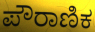
ಪೌರಾಣಿಕ